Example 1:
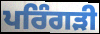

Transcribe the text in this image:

ਪਰਿੰਗੜੀ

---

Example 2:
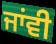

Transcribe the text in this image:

ਜਾਂਵੀ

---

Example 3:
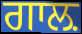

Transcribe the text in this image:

ਗਾਲ਼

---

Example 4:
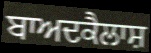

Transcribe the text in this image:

ਬਾਅਦਕੈਲਾਸ਼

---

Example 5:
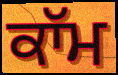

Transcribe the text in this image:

ਕਾੱਮ